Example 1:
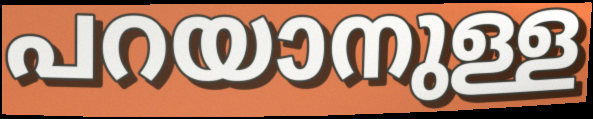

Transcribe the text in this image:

പറയാനുള്ള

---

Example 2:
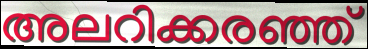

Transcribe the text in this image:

അലറിക്കരഞ്ഞ്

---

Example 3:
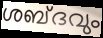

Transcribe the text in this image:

ശബ്ദവും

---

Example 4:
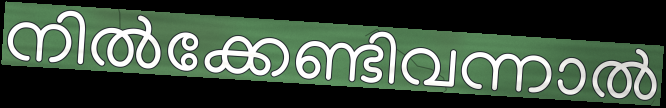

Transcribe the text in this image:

നിൽക്കേണ്ടിവന്നാൽ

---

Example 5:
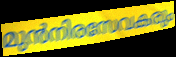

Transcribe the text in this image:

മുൻനിരസേവകരും